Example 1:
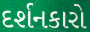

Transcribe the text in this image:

દર્શનકારો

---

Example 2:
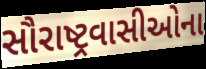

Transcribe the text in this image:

સૌરાષ્ટ્રવાસીઓના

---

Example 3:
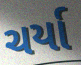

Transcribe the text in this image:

ચર્યા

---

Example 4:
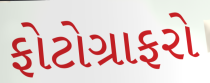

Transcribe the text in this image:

ફોટોગ્રાફરો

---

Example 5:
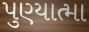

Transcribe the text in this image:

પુણ્યાત્મા